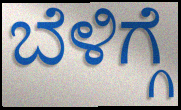
ಬೆಳಿಗ್ಗೆ